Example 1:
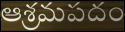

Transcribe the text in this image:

ఆశ్రమపదం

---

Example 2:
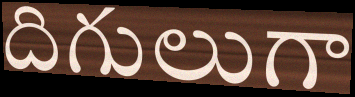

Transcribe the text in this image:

దిగులుగా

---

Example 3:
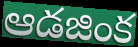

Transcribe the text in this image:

ఆడజింక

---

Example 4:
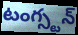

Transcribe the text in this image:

టంగ్స్టన్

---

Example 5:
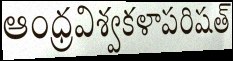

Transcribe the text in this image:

ఆంధ్రవిశ్వకళాపరిషత్